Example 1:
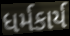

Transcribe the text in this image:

ધર્મકાર્ય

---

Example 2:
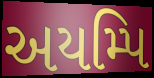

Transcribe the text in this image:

અયમ્પિ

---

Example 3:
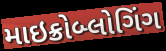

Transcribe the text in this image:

માઇક્રોબ્લોગિંગ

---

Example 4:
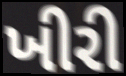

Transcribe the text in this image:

ખીરી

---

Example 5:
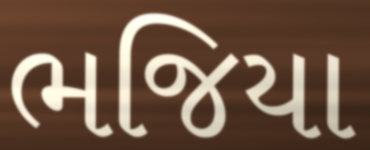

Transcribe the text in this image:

ભજિયા